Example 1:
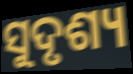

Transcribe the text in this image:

ସୁଦୃଶ୍ୟ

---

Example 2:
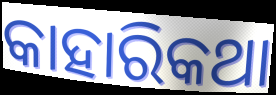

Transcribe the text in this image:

କାହାରିକଥା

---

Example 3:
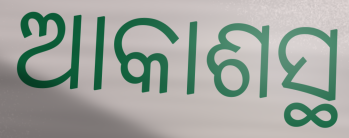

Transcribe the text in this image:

ଆକାଶସ୍ଥ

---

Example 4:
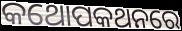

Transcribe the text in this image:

କଥୋପକଥନରେ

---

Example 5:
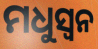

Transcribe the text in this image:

ମଧୁସ୍ୱନ